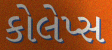
કોલેપ્સ